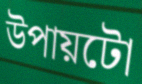
উপায়টো